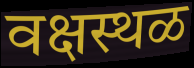
वक्षस्थळ